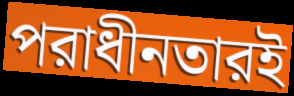
পরাধীনতারই